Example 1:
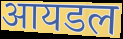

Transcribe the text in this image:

आयडल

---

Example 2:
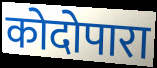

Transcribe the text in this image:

कोदोपारा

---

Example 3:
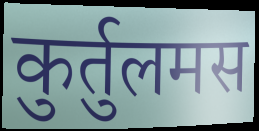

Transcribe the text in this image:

कुर्तुलमस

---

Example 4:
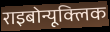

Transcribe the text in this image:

राइबोन्यूक्लिक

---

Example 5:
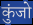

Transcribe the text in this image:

कुंजो